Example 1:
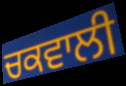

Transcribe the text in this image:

ਚਕਵਾਲੀ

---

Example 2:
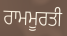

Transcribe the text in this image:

ਰਾਮਮੂਰਤੀ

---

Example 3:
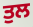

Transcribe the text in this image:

ਤੁਲ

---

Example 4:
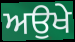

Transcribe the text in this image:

ਅਉਖੇ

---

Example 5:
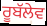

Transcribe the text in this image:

ਰੂਬੱਲੇਵ